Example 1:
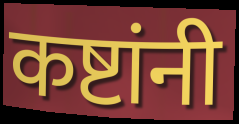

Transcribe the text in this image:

कष्टांनी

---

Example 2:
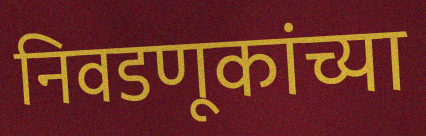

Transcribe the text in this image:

निवडणूकांच्या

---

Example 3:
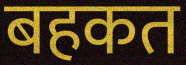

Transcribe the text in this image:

बहकत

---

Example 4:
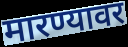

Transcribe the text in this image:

मारण्यावर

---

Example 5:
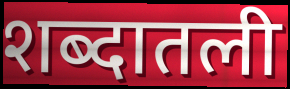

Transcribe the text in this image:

शब्दातली